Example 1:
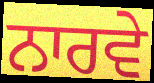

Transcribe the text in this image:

ਨਾਰਵੇ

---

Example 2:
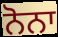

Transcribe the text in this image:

ਨੋਨਾ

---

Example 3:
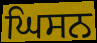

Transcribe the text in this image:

ਘਿਸਨ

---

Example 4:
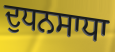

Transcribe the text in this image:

ਦੁਧਨਸਾਧਾ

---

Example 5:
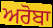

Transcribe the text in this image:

ਅਰੋਬਾ